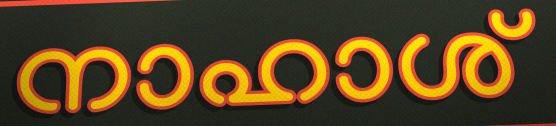
നാഹാശ്